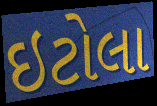
ઇટોલા